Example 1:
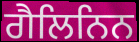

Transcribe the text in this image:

ਗੈਲਿਨਿਨ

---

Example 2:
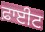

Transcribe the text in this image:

ਫ਼ਾਈਟ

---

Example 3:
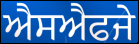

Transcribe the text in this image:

ਐਸਐਫਜੇ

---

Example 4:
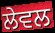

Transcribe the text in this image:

ਲੇਵਲ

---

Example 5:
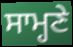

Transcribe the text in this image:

ਸਾਮ੍ਹਣੇ